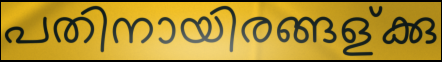
പതിനായിരങ്ങള്ക്കു